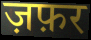
ज़फ़र